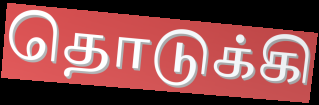
தொடுக்கி